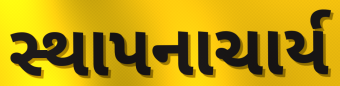
સ્થાપનાચાર્ય